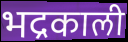
भद्रकाली